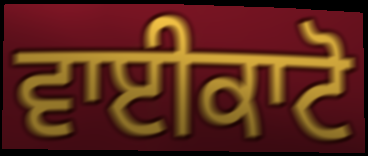
ਵਾਈਕਾਟੋ